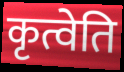
कृत्वेति